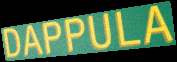
DAPPULA